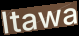
Itawa